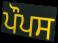
ਪੌਪਸ